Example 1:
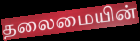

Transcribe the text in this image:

தலைமையின்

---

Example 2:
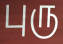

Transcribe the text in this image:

புரு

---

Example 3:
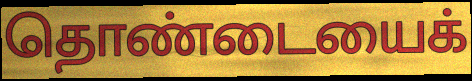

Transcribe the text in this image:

தொண்டையைக்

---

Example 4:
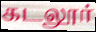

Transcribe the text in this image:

கடலூர்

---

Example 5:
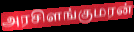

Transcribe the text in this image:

அரசிளங்குமரன்